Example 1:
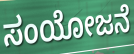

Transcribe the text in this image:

ಸಂಯೋಜನೆ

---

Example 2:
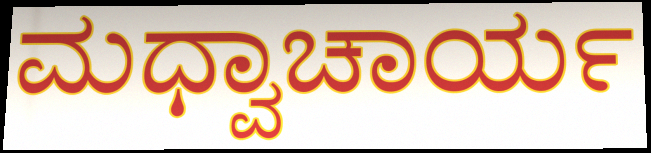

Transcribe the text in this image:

ಮಧ್ವಾಚಾರ್ಯ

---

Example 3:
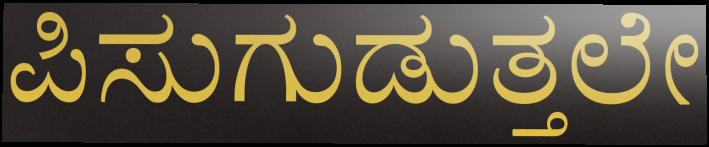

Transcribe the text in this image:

ಪಿಸುಗುಡುತ್ತಲೇ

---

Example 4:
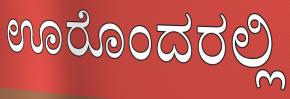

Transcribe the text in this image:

ಊರೊಂದರಲ್ಲಿ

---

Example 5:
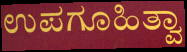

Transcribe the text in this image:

ಉಪಗೂಹಿತ್ವಾ